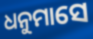
ଧନୁମାସେ